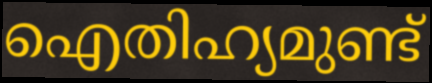
ഐതിഹ്യമുണ്ട്